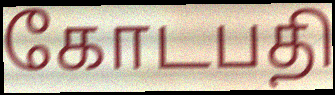
கோடபதி